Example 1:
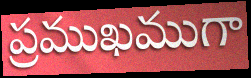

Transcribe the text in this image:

ప్రముఖముగా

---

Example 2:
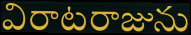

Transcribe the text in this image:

విరాటరాజును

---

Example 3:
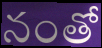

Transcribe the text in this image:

నంతో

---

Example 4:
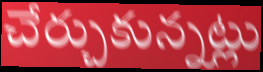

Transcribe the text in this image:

చేర్చుకున్నట్లు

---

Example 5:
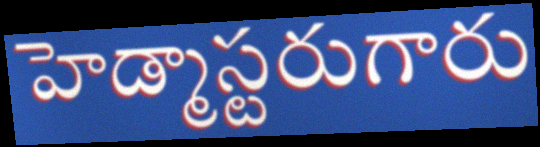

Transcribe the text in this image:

హెడ్మాస్టరుగారు